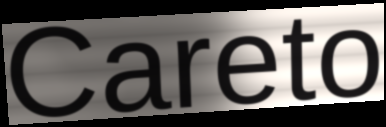
Careto